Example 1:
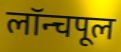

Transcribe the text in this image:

लॉन्चपूल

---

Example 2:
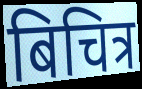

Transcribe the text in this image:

बिचित्र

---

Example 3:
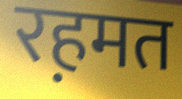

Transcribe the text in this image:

रह़मत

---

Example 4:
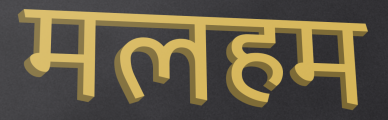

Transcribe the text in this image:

मलहम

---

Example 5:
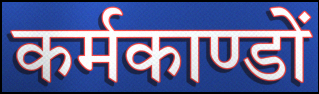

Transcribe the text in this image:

कर्मकाण्डों